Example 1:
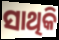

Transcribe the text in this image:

ସାଥିକି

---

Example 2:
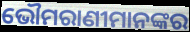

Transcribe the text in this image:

ଭୌମରାଣୀମାନଙ୍କର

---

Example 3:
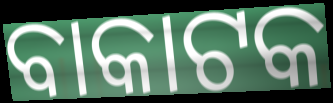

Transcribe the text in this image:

ବାକାଟକ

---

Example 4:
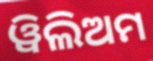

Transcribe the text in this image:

ୱିଲିଅମ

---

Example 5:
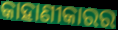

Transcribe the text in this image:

କାହାଣୀକାରର